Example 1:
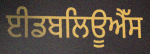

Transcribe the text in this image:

ਈਡਬਲਿਊਐੱਸ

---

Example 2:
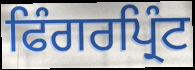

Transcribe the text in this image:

ਫਿੰਗਰਪ੍ਰਿੰਟ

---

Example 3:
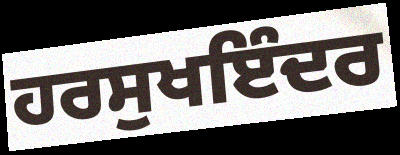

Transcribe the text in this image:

ਹਰਸੁਖਇੰਦਰ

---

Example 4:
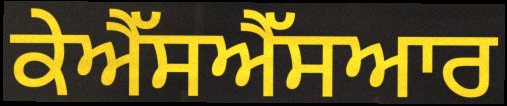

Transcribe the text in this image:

ਕੇਐੱਸਐੱਸਆਰ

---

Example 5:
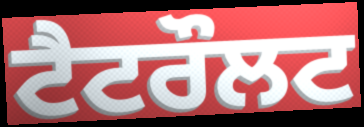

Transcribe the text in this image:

ਟੈਟਰੌਲਟ